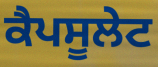
ਕੈਪਸੂਲੇਟ